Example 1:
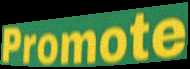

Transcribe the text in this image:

Promote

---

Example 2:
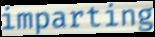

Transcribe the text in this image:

imparting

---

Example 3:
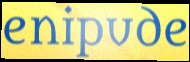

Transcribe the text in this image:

enipude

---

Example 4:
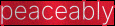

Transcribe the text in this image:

peaceably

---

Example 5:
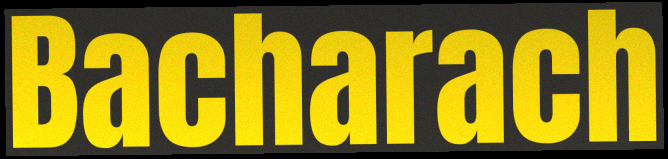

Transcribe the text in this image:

Bacharach